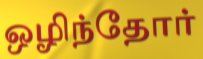
ஒழிந்தோர்